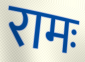
रामः